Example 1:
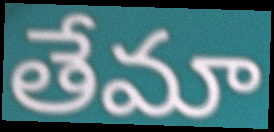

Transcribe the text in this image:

తేమా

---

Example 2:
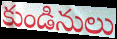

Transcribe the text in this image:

కుండినులు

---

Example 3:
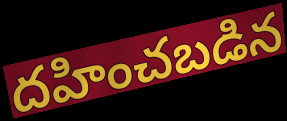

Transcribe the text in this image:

దహించబడిన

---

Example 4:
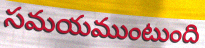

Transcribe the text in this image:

సమయముంటుంది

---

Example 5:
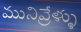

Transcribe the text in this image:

మునివ్రేళ్ళు